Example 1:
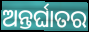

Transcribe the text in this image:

ଅନ୍ତର୍ଘାତର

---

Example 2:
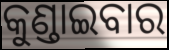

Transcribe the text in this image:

କୁଣ୍ଡାଇବାର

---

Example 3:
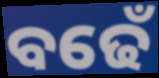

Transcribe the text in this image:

ବଢେଁ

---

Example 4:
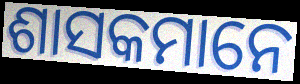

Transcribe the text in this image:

ଶାସକମାନେ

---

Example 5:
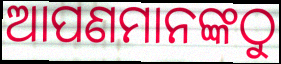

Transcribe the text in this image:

ଆପଣମାନଙ୍କଠୁ